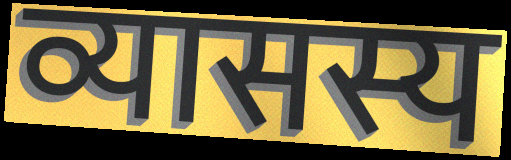
व्यासस्य